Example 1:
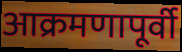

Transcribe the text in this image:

आक्रमणापूर्वी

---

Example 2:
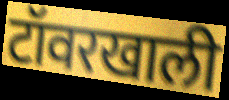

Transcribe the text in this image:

टॉवरखाली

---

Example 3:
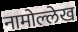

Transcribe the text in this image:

नामोल्लेख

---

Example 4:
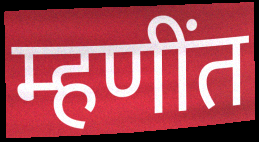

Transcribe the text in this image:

म्हणींत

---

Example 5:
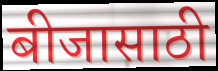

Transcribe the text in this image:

बीजासाठी